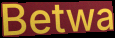
Betwa